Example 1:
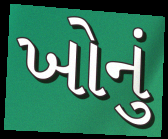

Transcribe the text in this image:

ખોનું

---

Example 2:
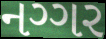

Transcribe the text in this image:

નગ્ગર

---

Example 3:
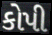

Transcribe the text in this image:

કોપી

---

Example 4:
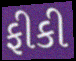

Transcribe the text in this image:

ફીકી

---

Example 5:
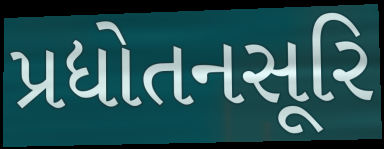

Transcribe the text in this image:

પ્રદ્યોતનસૂરિ